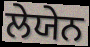
ਲੇਯੇਨ